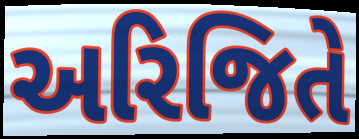
અરિજિતે